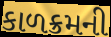
કાળક્રમની